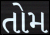
તોમ